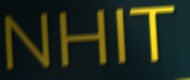
NHIT